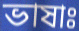
ভাষাঃ